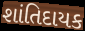
શાંતિદાયક